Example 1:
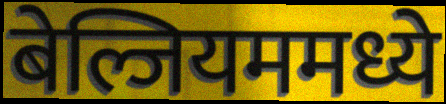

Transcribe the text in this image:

बेल्जियममध्ये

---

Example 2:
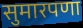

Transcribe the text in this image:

सुमारपणा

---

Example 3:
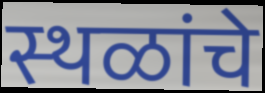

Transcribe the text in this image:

स्थळांचे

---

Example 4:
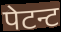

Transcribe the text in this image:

पेटन्ट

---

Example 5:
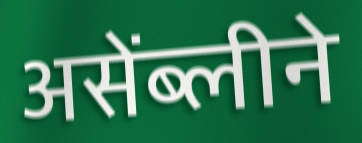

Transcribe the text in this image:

असेंब्लीने